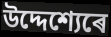
উদ্দেশ্যেৰে